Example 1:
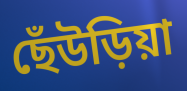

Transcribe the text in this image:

ছেঁউড়িয়া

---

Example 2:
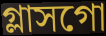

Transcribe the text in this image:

গ্লাসগো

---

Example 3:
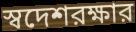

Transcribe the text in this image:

স্বদেশরক্ষার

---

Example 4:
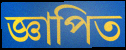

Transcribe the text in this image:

জ্ঞাপিত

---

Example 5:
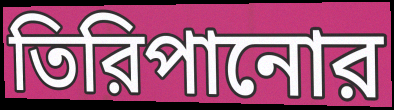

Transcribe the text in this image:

তিরিপানোর